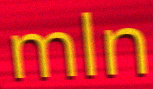
mln